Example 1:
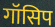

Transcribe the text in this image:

गॉसिप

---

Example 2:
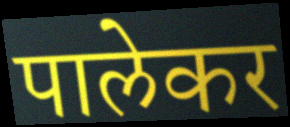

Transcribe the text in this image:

पालेकर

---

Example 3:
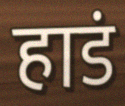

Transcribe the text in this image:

हाडं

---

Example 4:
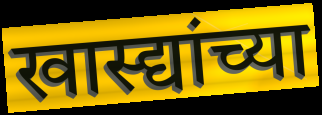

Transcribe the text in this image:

खास्द्यांच्या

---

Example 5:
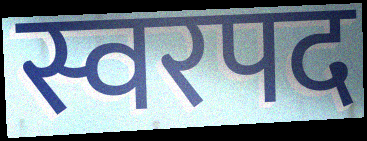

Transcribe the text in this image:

स्वरपद